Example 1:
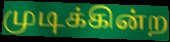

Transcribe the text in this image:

முடிக்கின்ற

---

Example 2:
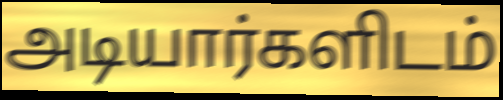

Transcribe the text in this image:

அடியார்களிடம்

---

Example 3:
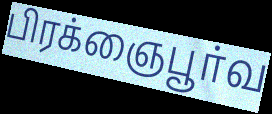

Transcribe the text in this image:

பிரக்ஞைபூர்வ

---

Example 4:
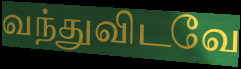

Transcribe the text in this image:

வந்துவிடவே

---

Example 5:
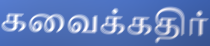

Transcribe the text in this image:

கவைக்கதிர்